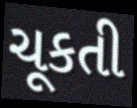
ચૂકતી